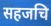
सहजचि